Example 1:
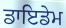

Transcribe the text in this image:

ਡਾਇਡੇਮ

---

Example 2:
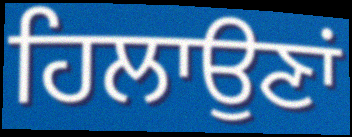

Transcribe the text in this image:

ਹਿਲਾਉਣਾਂ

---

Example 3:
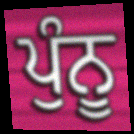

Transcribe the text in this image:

ਪੁੰਨੂ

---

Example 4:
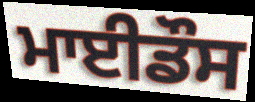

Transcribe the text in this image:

ਮਾਈਡੌਸ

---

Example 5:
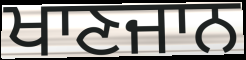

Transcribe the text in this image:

ਖਾਣਜਾਨ